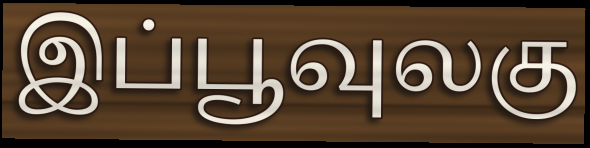
இப்பூவுலகு